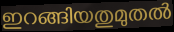
ഇറങ്ങിയതുമുതൽ